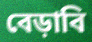
বেড়াবি